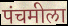
पंचमीला